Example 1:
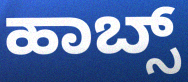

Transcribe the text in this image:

ಹಾಬ್ಸ್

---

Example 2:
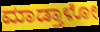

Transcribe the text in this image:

ಮಾಡ್ತಾಳೋ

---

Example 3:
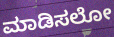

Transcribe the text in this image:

ಮಾಡಿಸಲೋ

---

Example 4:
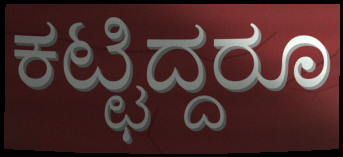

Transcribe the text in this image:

ಕಟ್ಟಿದ್ದರೂ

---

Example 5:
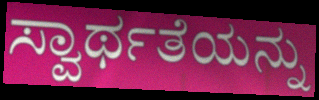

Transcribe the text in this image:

ಸ್ವಾರ್ಥತೆಯನ್ನು